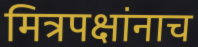
मित्रपक्षांनाच